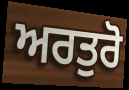
ਅਰਤੁਰੋ